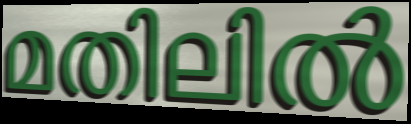
മതിലിൽ